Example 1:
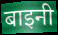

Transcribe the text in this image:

बाइनी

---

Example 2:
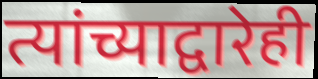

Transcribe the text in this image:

त्यांच्याद्वारेही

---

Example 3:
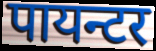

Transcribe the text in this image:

पायन्टर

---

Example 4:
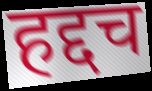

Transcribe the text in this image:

हद्दच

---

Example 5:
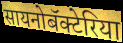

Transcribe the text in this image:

सायनोबॅक्टेरिया